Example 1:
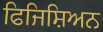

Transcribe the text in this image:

ਫਿਜਿਸ਼ਿਅਨ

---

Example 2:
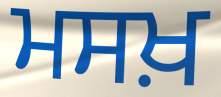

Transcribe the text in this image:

ਮਸਖ਼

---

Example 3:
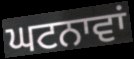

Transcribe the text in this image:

ਘਟਨਾਵਾਂ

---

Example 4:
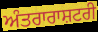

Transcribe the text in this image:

ਅੰਤਰਾਰਾਸ਼ਟਰੀ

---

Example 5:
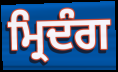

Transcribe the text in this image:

ਮ੍ਰਿਦੰਗ